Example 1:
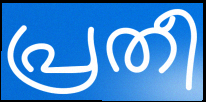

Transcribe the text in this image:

പ്രതീ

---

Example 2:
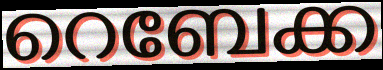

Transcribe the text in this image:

റെബേക്ക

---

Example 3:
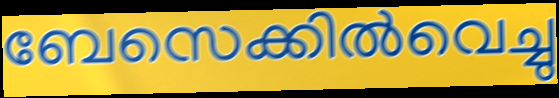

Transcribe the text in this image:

ബേസെക്കിൽവെച്ചു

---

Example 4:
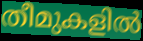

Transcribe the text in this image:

തീമുകളിൽ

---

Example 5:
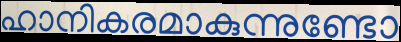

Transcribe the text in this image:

ഹാനികരമാകുന്നുണ്ടോ